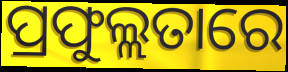
ପ୍ରଫୁଲ୍ଲତାରେ